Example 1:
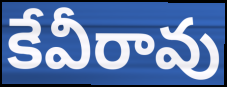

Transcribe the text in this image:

కేవీరావు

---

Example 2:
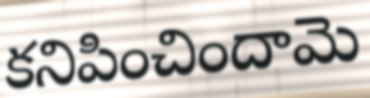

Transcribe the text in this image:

కనిపించిందామె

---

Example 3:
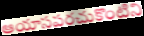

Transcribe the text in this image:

ఆయాసపరచుకొంటిని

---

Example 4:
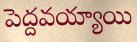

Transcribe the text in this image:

పెద్దవయ్యాయి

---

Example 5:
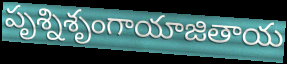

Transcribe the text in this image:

పృశ్నిశృంగాయాజితాయ